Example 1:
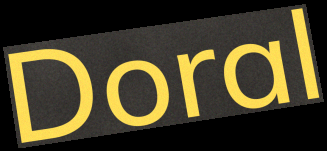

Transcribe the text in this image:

Doral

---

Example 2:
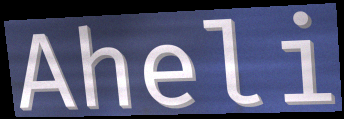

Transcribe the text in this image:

Aheli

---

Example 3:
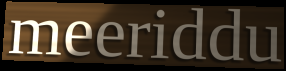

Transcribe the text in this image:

meeriddu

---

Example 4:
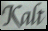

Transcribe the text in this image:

Kalt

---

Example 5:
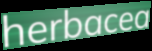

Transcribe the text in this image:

herbacea